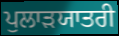
ਪੁਲਾੜਯਾਤਰੀ